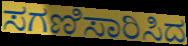
ಸಗಣಿಸಾರಿಸಿದ